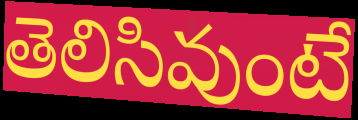
తెలిసివుంటే